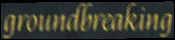
groundbreaking